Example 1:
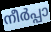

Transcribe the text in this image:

നീർപ്പാ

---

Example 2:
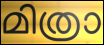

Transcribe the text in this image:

മിത്രാ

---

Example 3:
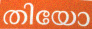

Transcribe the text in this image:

തിയോ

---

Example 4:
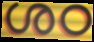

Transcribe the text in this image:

ശഠ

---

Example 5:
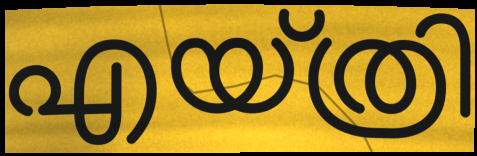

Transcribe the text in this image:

എയ്ത്രി